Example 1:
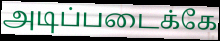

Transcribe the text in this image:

அடிப்படைக்கே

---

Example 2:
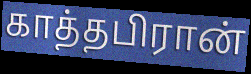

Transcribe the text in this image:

காத்தபிரான்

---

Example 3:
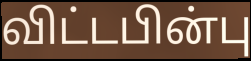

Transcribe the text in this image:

விட்டபின்பு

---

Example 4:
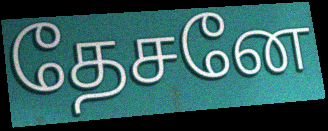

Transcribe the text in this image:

தேசனே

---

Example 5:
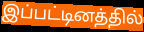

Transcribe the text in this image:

இப்பட்டினத்தில்